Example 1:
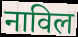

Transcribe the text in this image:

नाविल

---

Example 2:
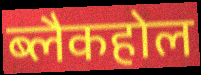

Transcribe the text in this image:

ब्लैकहोल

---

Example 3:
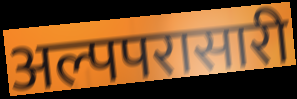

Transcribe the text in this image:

अल्पपरासारी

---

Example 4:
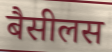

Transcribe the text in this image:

बैसीलस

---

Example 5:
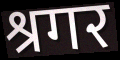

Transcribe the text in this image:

श्रगर